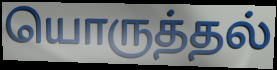
யொருத்தல்